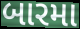
બારમા